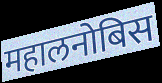
महालनोबिस